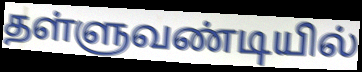
தள்ளுவண்டியில்